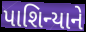
પાશિન્યાને